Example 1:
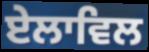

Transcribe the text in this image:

ਏਲਾਵਿਲ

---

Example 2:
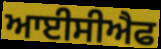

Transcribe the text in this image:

ਆਈਸੀਐਫ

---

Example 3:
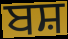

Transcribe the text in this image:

ਬਸ਼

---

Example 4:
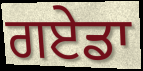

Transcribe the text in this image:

ਗਏਡਾ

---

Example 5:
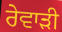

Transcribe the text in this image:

ਰੇਵਾਡ਼ੀ